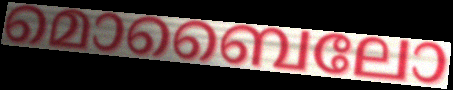
മൊബൈലോ